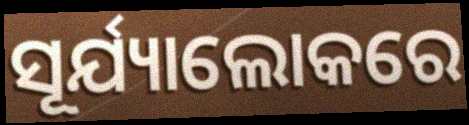
ସୂର୍ଯ୍ୟାଲୋକରେ